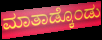
ಮಾತಾಡ್ಕೊಂಡು